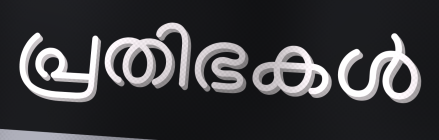
പ്രതിഭകൾ